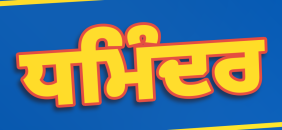
ਧਮਿੰਦਰ